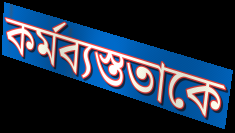
কর্মব্যস্ততাকে